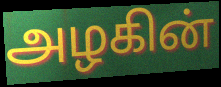
அழகின்